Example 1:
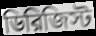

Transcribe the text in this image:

ডিরিজিস্ট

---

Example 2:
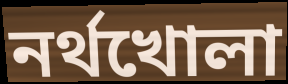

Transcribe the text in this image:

নর্থখোলা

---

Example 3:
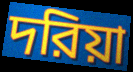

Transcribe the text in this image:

দরিয়া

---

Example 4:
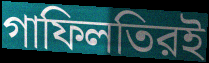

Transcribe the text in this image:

গাফিলতিরই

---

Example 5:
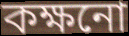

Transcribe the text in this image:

কক্ষনো